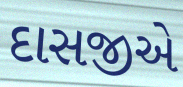
દાસજીએ